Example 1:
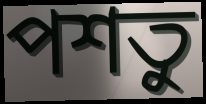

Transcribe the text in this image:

পশতু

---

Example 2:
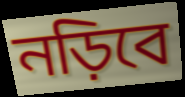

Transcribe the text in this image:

নড়িবে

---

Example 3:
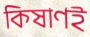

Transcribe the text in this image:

কিষাণই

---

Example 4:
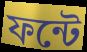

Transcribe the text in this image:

ফন্টে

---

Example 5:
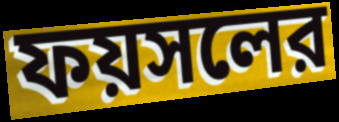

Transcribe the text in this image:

ফয়সলের